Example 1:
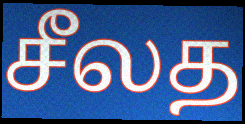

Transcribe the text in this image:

சீலத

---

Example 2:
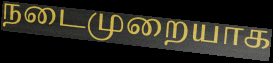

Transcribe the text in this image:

நடைமுறையாக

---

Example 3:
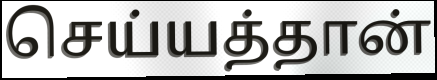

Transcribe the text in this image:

செய்யத்தான்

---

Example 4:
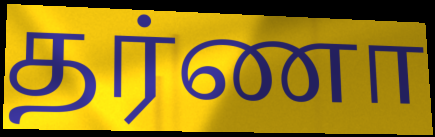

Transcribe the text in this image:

தர்ணா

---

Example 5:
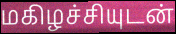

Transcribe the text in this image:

மகிழச்சியுடன்